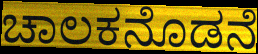
ಚಾಲಕನೊಡನೆ